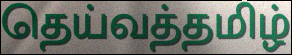
தெய்வத்தமிழ்